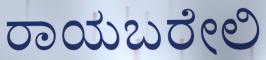
ರಾಯಬರೇಲಿ